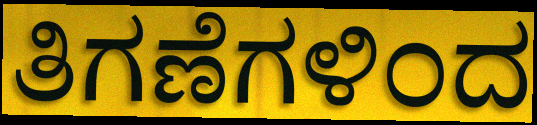
ತಿಗಣೆಗಳಿಂದ